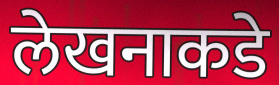
लेखनाकडे